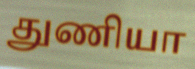
துணியா